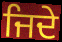
ਜਿਦੇ